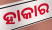
ହାକାର